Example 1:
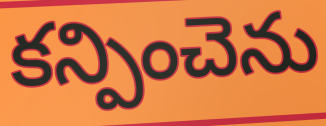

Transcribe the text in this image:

కన్పించెను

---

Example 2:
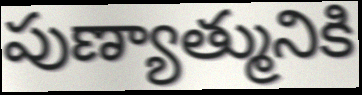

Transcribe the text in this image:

పుణ్యాత్మునికి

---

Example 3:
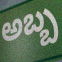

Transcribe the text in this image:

అబ్బ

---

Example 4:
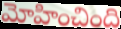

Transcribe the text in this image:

మోహించింది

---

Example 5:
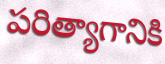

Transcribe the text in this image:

పరిత్యాగానికి